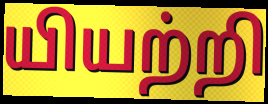
யியற்றி